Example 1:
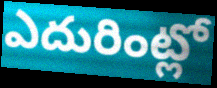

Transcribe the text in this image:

ఎదురింట్లో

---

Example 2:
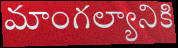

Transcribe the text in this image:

మాంగల్యానికి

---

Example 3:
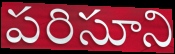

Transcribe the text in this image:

పరిసూని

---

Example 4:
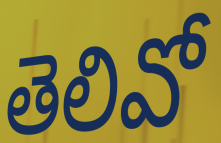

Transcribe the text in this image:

తెలివో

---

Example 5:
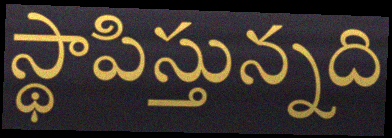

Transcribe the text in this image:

స్థాపిస్తున్నది